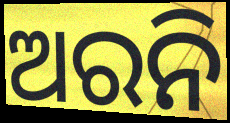
ଅରନି